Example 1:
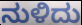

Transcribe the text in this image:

ನುಳಿದು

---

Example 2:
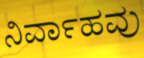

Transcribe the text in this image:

ನಿರ್ವಾಹವು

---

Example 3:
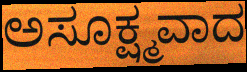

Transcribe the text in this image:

ಅಸೂಕ್ಷ್ಮವಾದ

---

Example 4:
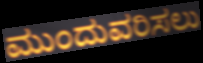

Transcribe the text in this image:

ಮುಂದುವರಿಸಲು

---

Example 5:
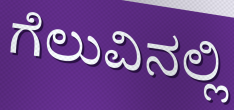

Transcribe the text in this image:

ಗೆಲುವಿನಲ್ಲಿ